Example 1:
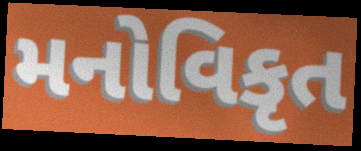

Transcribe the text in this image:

મનોવિકૃત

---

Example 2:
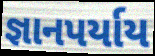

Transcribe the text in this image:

જ્ઞાનપર્યાય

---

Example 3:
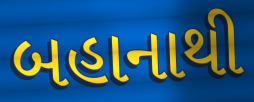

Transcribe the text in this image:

બહાનાથી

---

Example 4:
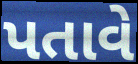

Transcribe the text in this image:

પતાવે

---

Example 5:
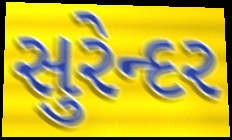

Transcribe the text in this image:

સુરેન્દર